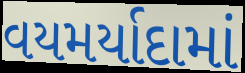
વયમર્યાદામાં